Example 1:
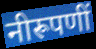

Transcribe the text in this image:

नीरूपणीं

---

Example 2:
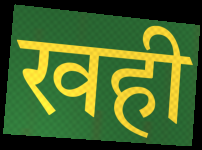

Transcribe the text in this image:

खही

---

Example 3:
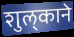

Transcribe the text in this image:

शुल्काने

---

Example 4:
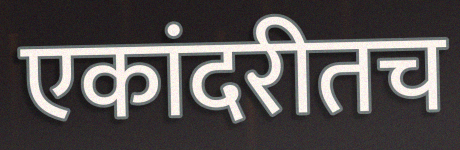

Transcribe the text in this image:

एकांदरीतच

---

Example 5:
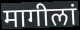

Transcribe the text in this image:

मागीलां